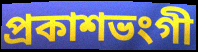
প্ৰকাশভংগী